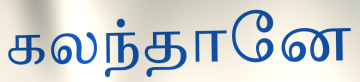
கலந்தானே